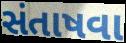
સંતાષવા